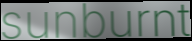
sunburnt